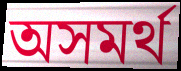
অসমর্থ